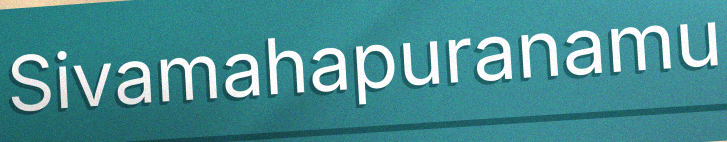
Sivamahapuranamu